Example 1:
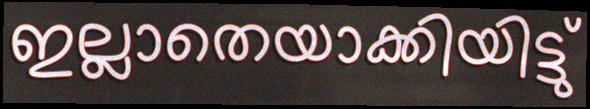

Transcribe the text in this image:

ഇല്ലാതെയാക്കിയിട്ടു്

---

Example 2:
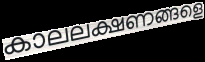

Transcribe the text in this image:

കാലലക്ഷണങ്ങളെ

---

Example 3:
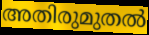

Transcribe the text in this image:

അതിരുമുതൽ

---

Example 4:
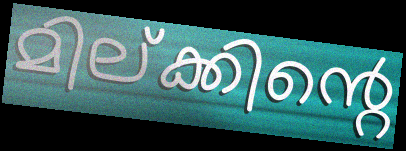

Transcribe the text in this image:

മില്ക്കിന്റെ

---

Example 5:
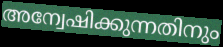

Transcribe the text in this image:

അന്വേഷിക്കുന്നതിനും